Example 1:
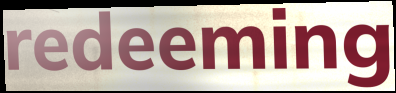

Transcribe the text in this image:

redeeming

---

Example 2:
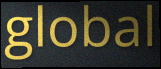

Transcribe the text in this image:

global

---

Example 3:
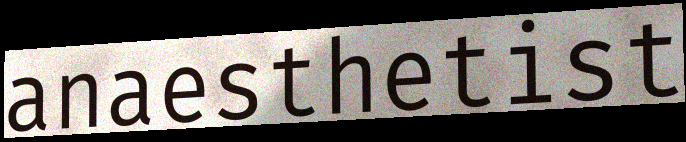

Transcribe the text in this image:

anaesthetist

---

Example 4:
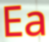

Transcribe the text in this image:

Ea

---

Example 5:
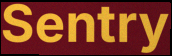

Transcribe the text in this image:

Sentry